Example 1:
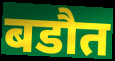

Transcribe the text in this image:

बडौत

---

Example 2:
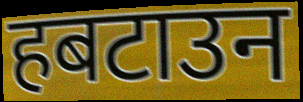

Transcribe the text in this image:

हबटाउन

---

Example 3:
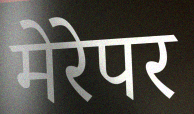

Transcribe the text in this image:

मेरेपर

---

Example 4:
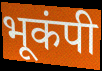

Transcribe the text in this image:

भूकंपी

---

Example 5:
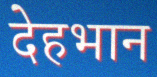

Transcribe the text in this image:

देहभान